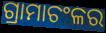
ଗ୍ରାମାଚଂଳର